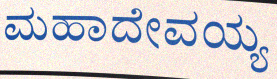
ಮಹಾದೇವಯ್ಯ